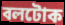
বলটোক